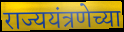
राज्ययंत्रणेच्या